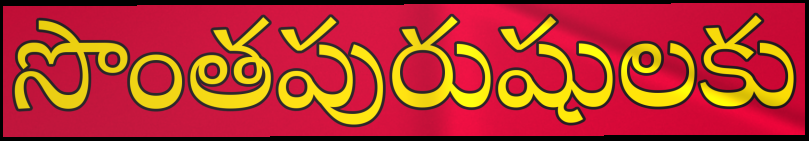
సొంతపురుషులకు